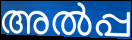
അൽപ്പ